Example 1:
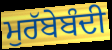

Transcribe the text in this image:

ਮੁਰੱਬੇਬੰਦੀ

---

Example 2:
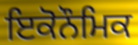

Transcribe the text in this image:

ਇਕੋਨੌਮਿਕ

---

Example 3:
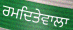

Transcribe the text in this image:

ਰਮਦਿਤੇਵਾਲਾ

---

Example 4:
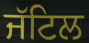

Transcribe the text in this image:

ਜੱਟਿਲ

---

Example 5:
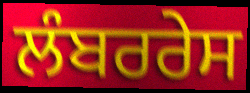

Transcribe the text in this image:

ਲੰਬਰਰੇਸ